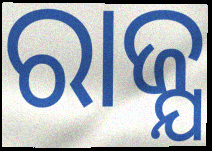
ରାଜ୍ଯ